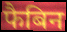
फैबिन